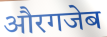
औरगजेब